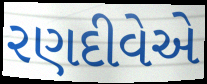
રણદીવેએ